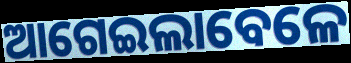
ଆଗେଇଲାବେଳେ